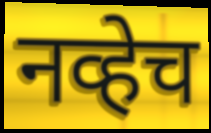
नव्हेच